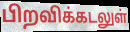
பிறவிக்கடலுள்